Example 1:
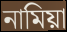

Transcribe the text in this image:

নামিয়া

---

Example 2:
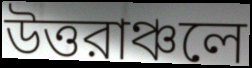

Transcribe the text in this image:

উত্তরাঞ্চলে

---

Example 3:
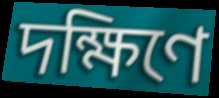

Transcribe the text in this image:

দক্ষিণে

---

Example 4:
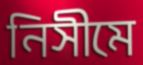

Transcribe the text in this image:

নিসীমে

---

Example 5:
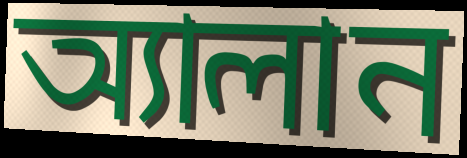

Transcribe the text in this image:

অ্যালান